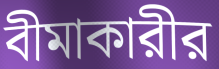
বীমাকারীর